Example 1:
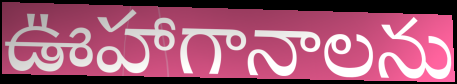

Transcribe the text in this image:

ఊహాగానాలను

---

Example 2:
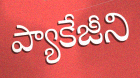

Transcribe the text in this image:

ప్యాకేజీని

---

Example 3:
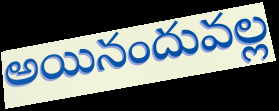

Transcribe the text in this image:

అయినందువల్ల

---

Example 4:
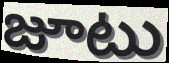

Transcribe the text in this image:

జూటు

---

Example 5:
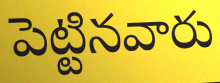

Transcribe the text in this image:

పెట్టినవారు